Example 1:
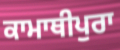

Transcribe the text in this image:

ਕਾਮਾਥੀਪੁਰਾ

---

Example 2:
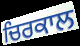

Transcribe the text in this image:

ਚਿਰਕਾਲ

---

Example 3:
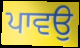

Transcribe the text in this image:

ਪਾਵਉ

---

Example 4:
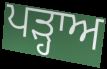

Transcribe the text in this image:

ਪੜ੍ਹਾਅ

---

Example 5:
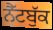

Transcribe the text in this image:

ਨੈੱਟਬੁੱਕ